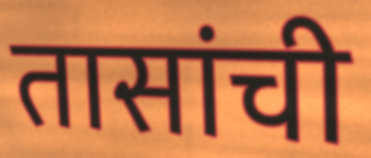
तासांची